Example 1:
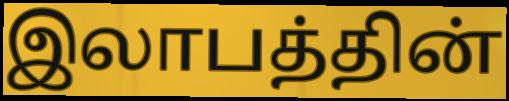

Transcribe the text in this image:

இலாபத்தின்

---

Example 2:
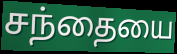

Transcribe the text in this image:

சந்தையை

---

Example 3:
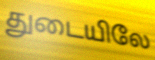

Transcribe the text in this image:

துடையிலே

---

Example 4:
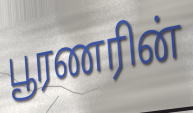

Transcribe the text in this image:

பூரணரின்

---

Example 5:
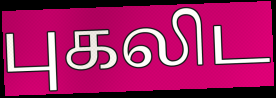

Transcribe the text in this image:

புகலிட